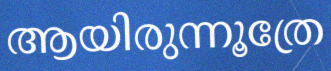
ആയിരുന്നൂത്രേ